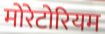
मोरेटोरियम